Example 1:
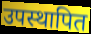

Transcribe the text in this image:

उपस्थापित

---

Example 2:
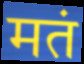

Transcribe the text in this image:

मतं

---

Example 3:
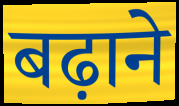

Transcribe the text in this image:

बढ़ाने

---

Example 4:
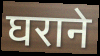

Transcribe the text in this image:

घराने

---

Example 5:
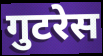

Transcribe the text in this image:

गुटरेस